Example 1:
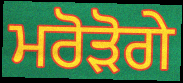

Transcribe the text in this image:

ਮਰੋੜੋਗੇ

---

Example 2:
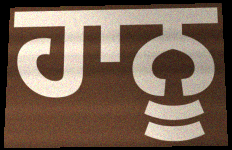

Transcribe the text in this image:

ਹਾਨੂ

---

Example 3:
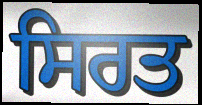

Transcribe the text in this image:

ਸਿਰਤ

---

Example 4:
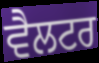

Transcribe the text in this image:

ਵੈਲਟਰ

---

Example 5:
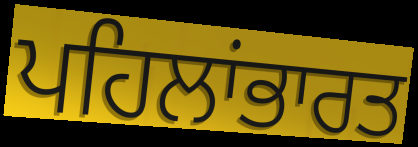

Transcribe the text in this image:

ਪਹਿਲਾਂਭਾਰਤ